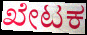
ಖೇಟಕ